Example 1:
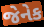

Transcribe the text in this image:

જેનેક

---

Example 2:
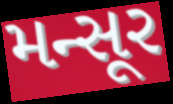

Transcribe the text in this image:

મન્સૂર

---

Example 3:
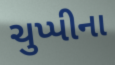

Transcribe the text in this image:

ચુપ્પીના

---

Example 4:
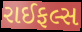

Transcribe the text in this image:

રાઈફલ્સ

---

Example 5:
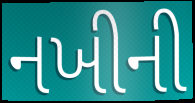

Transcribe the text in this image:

નખીની